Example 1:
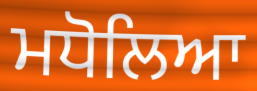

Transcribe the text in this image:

ਮਧੋਲਿਆ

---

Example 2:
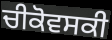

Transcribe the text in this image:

ਚੀਕੋਵਸਕੀ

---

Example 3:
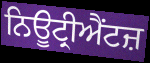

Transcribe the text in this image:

ਨਿਊਟ੍ਰੀਐਂਟਜ਼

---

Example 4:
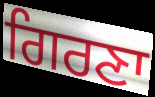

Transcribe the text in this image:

ਗਿਰਣਾ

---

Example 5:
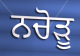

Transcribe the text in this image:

ਨਚੋੜੂ